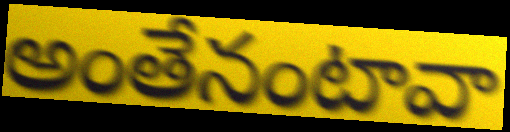
అంతేనంటావా